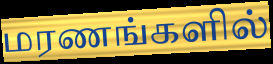
மரணங்களில்